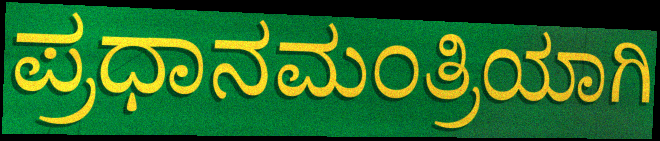
ಪ್ರಧಾನಮಂತ್ರಿಯಾಗಿ